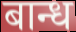
बान्ध